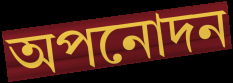
অপনোদন